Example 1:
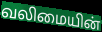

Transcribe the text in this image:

வலிமையின்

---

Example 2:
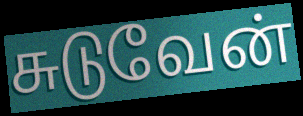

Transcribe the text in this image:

சுடுவேன்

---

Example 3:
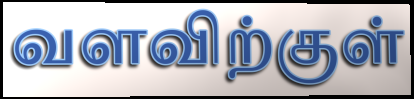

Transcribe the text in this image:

வளவிற்குள்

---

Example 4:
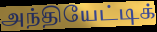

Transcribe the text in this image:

அந்தியேட்டிக்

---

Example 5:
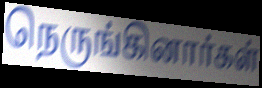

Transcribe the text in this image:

நெருங்கினார்கள்